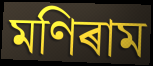
মণিৰাম